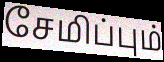
சேமிப்பும்